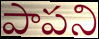
పాపని